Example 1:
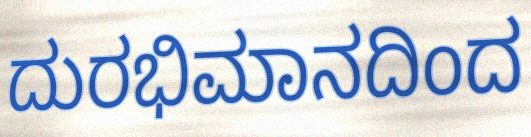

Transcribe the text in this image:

ದುರಭಿಮಾನದಿಂದ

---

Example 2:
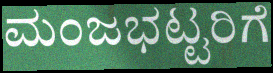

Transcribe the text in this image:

ಮಂಜಭಟ್ಟರಿಗೆ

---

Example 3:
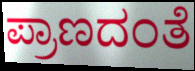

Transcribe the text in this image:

ಪ್ರಾಣದಂತೆ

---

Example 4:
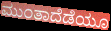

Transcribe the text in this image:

ಮುಂತಾದೆಡೆಯೂ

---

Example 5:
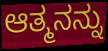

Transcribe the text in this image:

ಆತ್ಮನನ್ನು